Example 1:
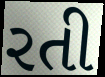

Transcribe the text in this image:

રતી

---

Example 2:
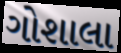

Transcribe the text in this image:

ગોશાલા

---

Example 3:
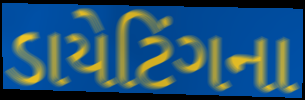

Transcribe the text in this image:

ડાયેટિંગના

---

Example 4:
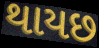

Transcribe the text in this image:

થાયછ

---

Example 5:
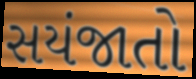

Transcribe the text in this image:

સયંજાતો